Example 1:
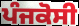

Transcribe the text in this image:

ਪੰਜਕੋਸੀ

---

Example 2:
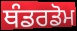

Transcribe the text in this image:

ਥੰਡਰਡੋਮ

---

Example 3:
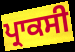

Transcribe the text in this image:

ਪ੍ਰਾਕਸੀ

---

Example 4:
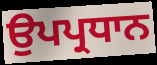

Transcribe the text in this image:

ਉਪਪ੍ਰਧਾਨ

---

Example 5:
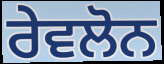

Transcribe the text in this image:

ਰੇਵਲੋਨ